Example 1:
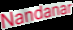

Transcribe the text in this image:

Nandanar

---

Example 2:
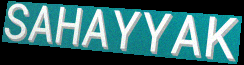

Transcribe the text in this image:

SAHAYYAK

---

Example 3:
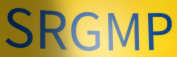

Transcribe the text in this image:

SRGMP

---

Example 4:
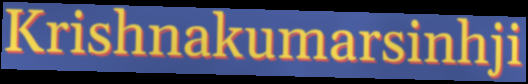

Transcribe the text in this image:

Krishnakumarsinhji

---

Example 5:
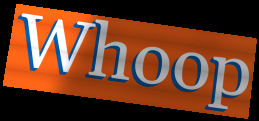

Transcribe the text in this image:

Whoop